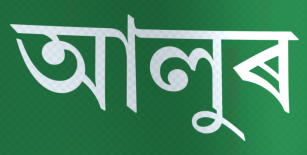
আলুৰ